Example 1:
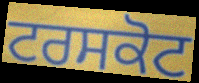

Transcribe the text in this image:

ਟਰਸਕੋਟ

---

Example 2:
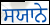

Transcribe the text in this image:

ਸਯਾਨੇ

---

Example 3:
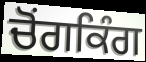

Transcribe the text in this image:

ਚੋਂਗਕਿੰਗ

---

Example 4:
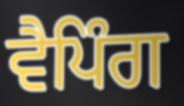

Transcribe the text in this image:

ਵੈਪਿੰਗ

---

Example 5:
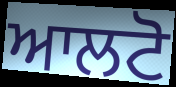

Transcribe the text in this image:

ਆਲਟੋ